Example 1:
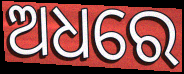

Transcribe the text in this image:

ଅଧରେ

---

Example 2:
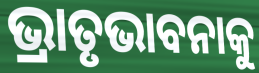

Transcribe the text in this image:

ଭ୍ରାତୃଭାବନାକୁ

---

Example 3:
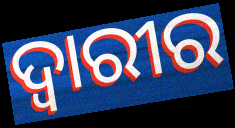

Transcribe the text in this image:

ଦ୍ୱାରୀର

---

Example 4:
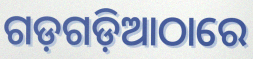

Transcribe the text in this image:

ଗଡ଼ଗଡ଼ିଆଠାରେ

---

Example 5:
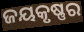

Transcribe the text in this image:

ଜୟକୃଷ୍ଣର